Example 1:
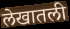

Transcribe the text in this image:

लेखातली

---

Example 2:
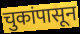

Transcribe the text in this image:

चुकांपासून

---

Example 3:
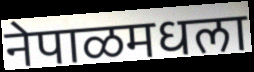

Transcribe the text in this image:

नेपाळमधला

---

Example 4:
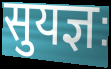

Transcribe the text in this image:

सुयज्ञः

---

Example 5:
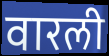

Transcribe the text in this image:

वारली